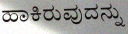
ಹಾಕಿರುವುದನ್ನು